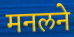
मनलने